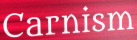
Carnism